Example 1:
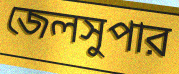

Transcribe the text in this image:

জেলসুপার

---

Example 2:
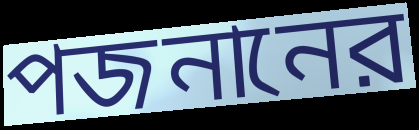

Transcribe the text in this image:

পজনানের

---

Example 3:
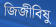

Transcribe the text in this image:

জিজীবিষু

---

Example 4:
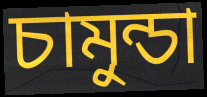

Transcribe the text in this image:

চামুন্ডা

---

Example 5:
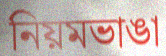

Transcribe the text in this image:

নিয়মভাঙা